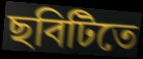
ছবিটিতে